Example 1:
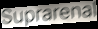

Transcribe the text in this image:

Suprarenal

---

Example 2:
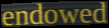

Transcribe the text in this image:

endowed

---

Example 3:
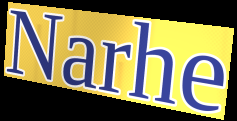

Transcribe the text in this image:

Narhe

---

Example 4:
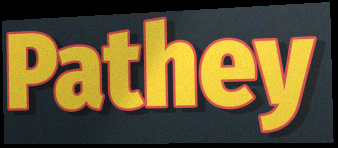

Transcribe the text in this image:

Pathey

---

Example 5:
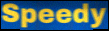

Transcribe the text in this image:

Speedy